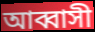
আব্বাসী